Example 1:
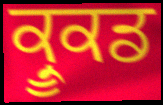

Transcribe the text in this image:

ਕ੍ਰੂਕਡ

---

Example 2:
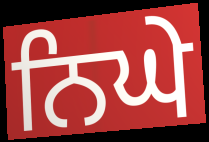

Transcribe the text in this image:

ਨਿਘੇ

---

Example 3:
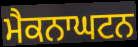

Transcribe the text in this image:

ਮੈਕਨਾਘਟਨ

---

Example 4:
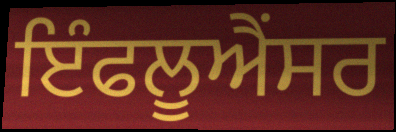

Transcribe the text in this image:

ਇੰਫਲੂਐਂਸਰ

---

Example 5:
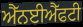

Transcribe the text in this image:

ਐੱਨਈਐੱਫਟੀ